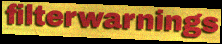
filterwarnings